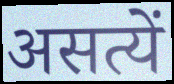
असत्यें